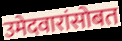
उमेदवारांसोबत